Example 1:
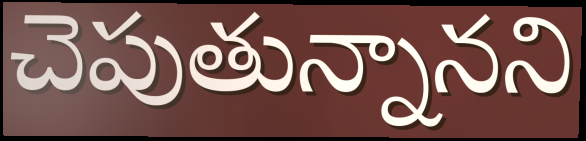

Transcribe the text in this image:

చెపుతున్నానని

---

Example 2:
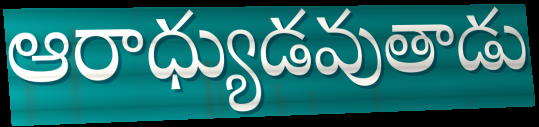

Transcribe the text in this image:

ఆరాధ్యుడవుతాడు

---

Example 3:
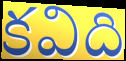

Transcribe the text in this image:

కవిది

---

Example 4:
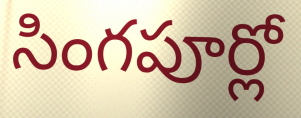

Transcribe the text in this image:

సింగపూర్లో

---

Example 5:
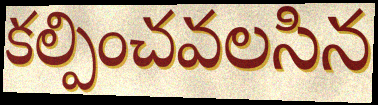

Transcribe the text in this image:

కల్పించవలసిన